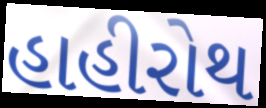
હાહીરોથ